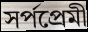
সর্পপ্রেমী